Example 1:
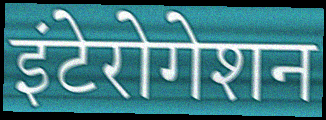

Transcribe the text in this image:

इंटेरोगेशन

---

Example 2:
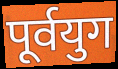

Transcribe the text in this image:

पूर्वयुग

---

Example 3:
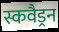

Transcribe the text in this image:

स्कवैड्रन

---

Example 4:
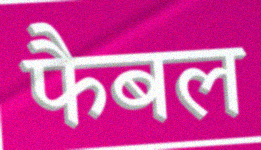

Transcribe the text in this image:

फैबल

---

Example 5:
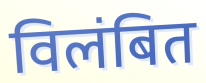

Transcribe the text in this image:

विलंबित